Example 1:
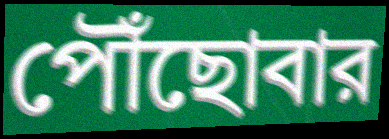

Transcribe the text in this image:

পৌঁছোবার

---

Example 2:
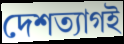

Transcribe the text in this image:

দেশত্যাগই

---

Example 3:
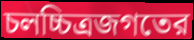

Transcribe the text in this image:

চলচ্চিত্রজগতের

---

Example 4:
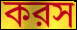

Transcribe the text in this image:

করস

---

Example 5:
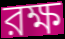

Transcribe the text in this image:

রক্ষ